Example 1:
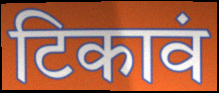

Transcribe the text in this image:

टिकावं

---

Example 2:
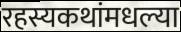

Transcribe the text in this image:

रहस्यकथांमधल्या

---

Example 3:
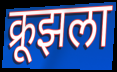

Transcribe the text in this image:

क्रूझला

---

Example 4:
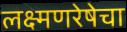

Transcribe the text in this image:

लक्ष्मणरेषेचा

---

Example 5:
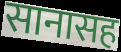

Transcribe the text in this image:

सानासह